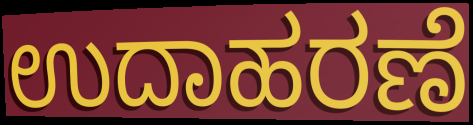
ಉದಾಹರಣೆ